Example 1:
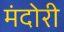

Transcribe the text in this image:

मंदोरी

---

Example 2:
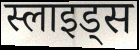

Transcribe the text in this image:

स्लाइड्स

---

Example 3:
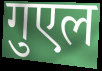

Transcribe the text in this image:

गुएल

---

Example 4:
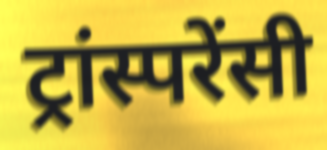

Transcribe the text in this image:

ट्रांस्परेंसी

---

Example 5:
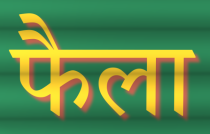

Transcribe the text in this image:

फैला